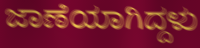
ಜಾಣೆಯಾಗಿದ್ದಳು